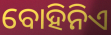
ବୋହିନିଏ